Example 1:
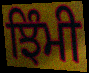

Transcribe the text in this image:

ਝਿੰਮੀ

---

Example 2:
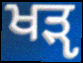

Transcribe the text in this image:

ਖੜੵ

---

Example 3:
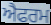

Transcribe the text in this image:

ਐਫਰਮ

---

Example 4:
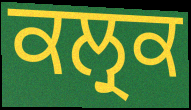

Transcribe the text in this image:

ਕਲ੍ਰਕ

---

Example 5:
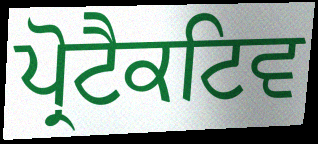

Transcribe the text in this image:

ਪ੍ਰੋਟੈਕਟਿਵ